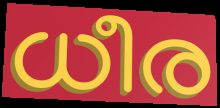
ധീര